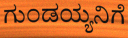
ಗುಂಡಯ್ಯನಿಗೆ